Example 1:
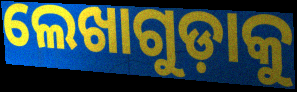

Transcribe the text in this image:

ଲେଖାଗୁଡ଼ାକୁ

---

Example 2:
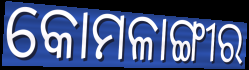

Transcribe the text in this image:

କୋମଳାଙ୍ଗୀର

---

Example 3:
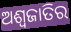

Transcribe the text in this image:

ଅଶ୍ୱଜାତିର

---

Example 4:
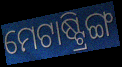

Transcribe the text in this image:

ମେଟାଷ୍ଟ୍ରିଙ୍ଗ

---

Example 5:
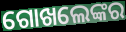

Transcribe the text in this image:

ଗୋଖଲେଙ୍କର